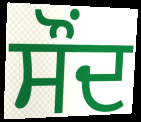
ਸੌਂਦ